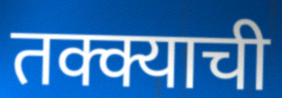
तक्क्याची